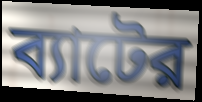
ব্যাটের